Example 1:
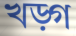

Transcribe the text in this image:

খড়্গ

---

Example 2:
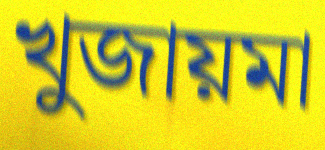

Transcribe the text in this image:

খুজায়মা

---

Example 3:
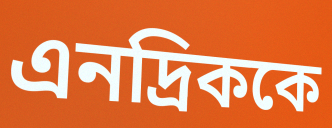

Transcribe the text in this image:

এনদ্রিককে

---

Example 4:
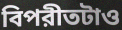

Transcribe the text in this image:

বিপরীতটাও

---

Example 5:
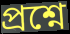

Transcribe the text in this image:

প্রশ্নে